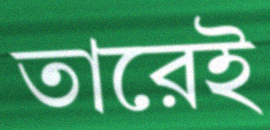
তারেই